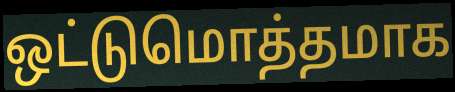
ஒட்டுமொத்தமாக